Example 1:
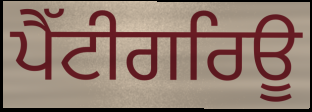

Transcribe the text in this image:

ਪੈੱਟੀਗਰਿਊ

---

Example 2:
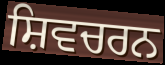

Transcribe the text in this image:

ਸ਼ਿਵਚਰਨ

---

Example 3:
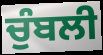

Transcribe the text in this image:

ਚੁੰਬਲੀ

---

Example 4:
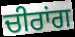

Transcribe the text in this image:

ਚੀਰਾਂਗ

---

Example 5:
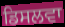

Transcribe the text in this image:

ਡਿਸਲਵਾ